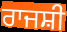
ਰਾਜਸ਼ੀ